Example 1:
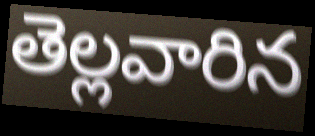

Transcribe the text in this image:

తెల్లవారిన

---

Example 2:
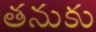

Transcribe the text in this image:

తనుకు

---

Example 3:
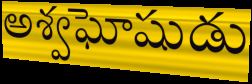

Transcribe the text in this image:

అశ్వఘోషుడు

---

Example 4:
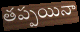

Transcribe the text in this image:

తప్పయినా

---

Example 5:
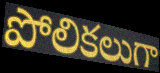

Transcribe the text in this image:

పోలికలుగా